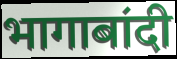
भागाबांदी